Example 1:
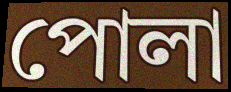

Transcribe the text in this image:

পোলা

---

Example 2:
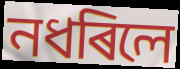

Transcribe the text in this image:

নধৰিলে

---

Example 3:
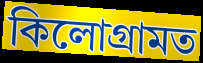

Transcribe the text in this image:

কিলোগ্ৰামত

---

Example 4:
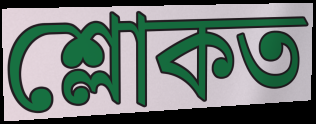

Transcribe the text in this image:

শ্লোকত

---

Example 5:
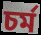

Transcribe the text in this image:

চৰ্ম